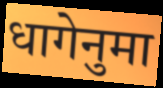
धागेनुमा